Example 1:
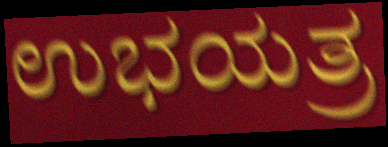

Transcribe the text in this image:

ಉಭಯತ್ರ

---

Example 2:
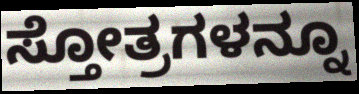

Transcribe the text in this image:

ಸ್ತೋತ್ರಗಳನ್ನೂ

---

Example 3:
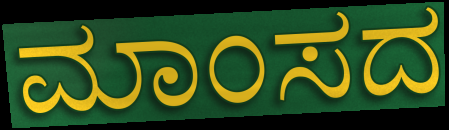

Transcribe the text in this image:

ಮಾಂಸದ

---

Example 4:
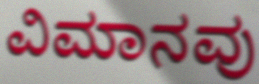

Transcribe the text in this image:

ವಿಮಾನವು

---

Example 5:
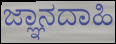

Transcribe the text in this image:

ಜ್ಞಾನದಾಹಿ